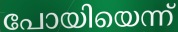
പോയിയെന്ന്